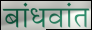
बांधवांत